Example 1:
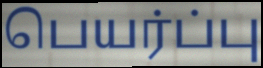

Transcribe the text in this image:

பெயர்ப்பு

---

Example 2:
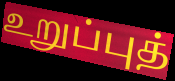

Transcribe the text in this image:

உறுப்புத்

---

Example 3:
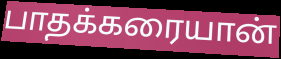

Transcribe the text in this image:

பாதக்கரையான்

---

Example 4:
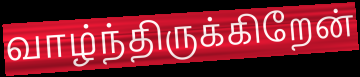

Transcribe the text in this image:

வாழ்ந்திருக்கிறேன்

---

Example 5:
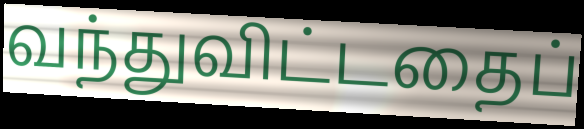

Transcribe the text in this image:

வந்துவிட்டதைப்